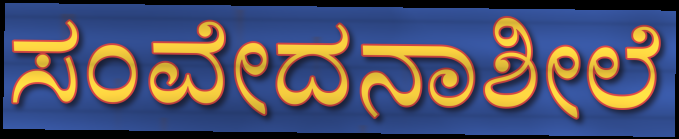
ಸಂವೇದನಾಶೀಲೆ